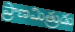
ప్రాణమిత్రుడు